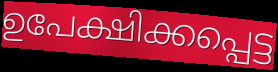
ഉപേക്ഷിക്കപ്പെട്ട